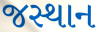
જસ્થાન